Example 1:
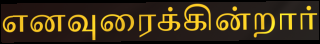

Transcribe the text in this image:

எனவுரைக்கின்றார்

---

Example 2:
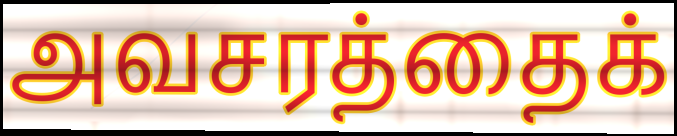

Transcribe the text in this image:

அவசரத்தைக்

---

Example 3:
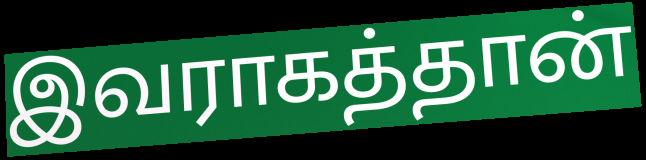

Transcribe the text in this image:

இவராகத்தான்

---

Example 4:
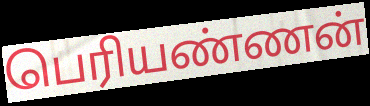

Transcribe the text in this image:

பெரியண்ணன்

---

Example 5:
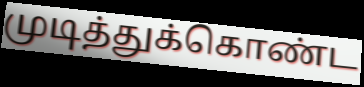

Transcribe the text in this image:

முடித்துக்கொண்ட